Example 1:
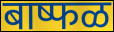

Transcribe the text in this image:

बाष्फळ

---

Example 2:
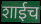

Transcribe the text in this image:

शाईच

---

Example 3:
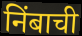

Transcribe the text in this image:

निंबाची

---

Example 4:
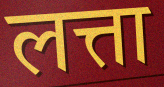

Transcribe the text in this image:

लत्ता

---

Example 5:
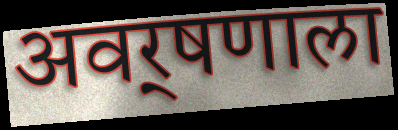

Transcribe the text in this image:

अवर्षणाला